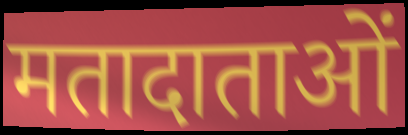
मतादाताओं